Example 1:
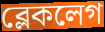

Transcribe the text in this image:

ব্লেকলেগ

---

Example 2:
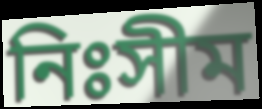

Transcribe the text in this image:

নিঃসীম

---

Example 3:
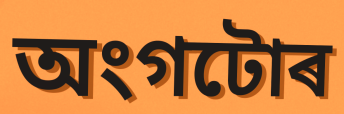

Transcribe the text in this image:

অংগটোৰ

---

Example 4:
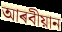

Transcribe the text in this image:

আৰবীয়ান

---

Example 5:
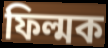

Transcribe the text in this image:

ফিল্মক